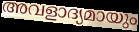
അവളാദ്യമായും